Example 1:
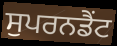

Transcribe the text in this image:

ਸੁਪਰਨਡੈਂਟ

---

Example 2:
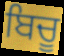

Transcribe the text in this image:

ਬਿਚੂ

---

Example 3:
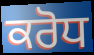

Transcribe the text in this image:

ਕਰੋਧ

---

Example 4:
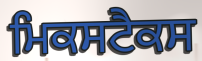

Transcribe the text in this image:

ਮਿਕਸਟੈਕਸ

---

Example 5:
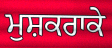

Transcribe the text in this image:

ਮੁਸ਼ਕਰਾਕੇ